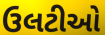
ઉલટીઓ